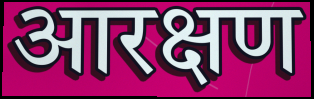
आरक्षण